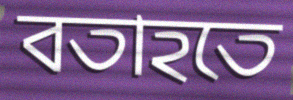
বতাহতে